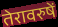
तेरावरुषें